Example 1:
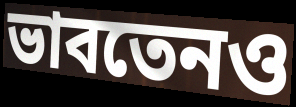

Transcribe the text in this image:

ভাবতেনও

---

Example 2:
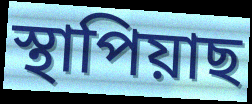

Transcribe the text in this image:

স্থাপিয়াছ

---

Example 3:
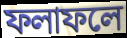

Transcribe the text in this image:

ফলাফলে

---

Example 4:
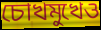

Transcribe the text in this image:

চোখমুখেও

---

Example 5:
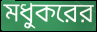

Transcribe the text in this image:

মধুকরের